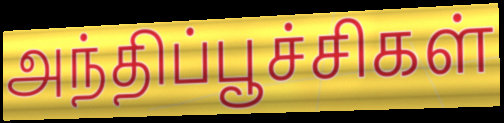
அந்திப்பூச்சிகள்